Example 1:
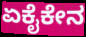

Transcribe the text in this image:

ಏಕೈಕೇನ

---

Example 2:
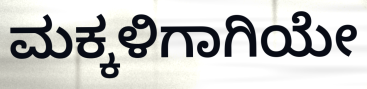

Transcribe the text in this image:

ಮಕ್ಕಳಿಗಾಗಿಯೇ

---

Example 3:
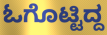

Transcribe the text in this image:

ಓಗೊಟ್ಟಿದ್ದ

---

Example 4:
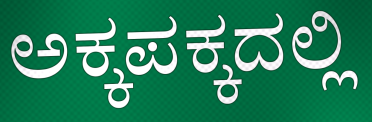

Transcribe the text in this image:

ಅಕ್ಕಪಕ್ಕದಲ್ಲಿ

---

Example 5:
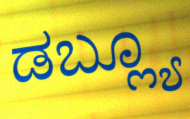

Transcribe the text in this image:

ಡಬ್ಲ್ಯೂ